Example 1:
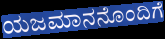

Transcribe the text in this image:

ಯಜಮಾನನೊಂದಿಗೆ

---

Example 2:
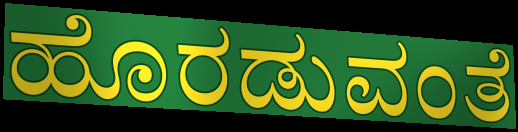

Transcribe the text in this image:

ಹೊರಡುವಂತೆ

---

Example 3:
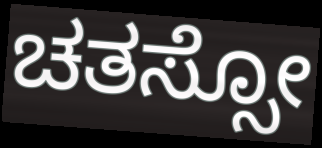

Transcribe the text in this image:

ಚತಸ್ಸೋ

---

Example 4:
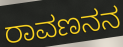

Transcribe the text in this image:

ರಾವಣನನ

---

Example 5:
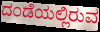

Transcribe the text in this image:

ದಂಡೆಯಲ್ಲಿರುವ